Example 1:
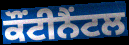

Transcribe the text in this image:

ਕੌਂਟੀਨੈਂਟਲ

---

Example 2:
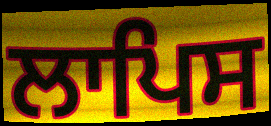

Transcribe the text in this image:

ਲਾਪਿਸ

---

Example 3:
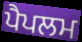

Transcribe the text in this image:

ਪੈਪਲਮ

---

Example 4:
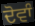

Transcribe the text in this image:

ਦੋਵਾੰ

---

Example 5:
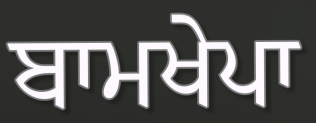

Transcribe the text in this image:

ਬਾਮਖੇਪਾ